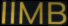
IIMB